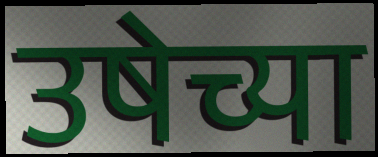
उषेच्या